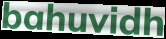
bahuvidh